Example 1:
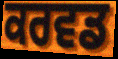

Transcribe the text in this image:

ਕਰਵਡ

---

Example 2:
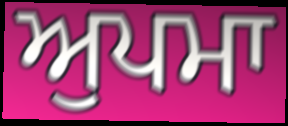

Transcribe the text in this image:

ਅੁਪਮਾ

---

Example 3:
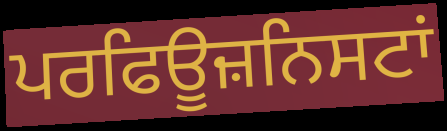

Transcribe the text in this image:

ਪਰਫਿਊਜ਼ਨਿਸਟਾਂ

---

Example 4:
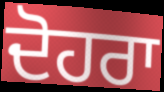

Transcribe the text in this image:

ਦੋਹਰਾ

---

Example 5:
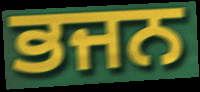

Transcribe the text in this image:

ਭਜਨ